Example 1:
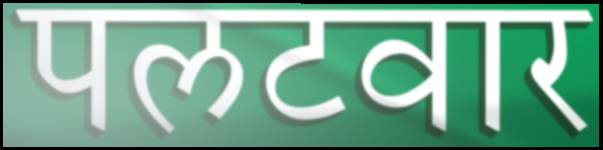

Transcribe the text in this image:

पलटवार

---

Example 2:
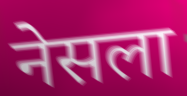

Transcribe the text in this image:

नेसला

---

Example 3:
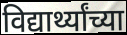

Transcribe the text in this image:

विद्यार्थ्यांच्या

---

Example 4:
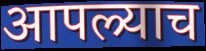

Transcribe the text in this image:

आपल्याच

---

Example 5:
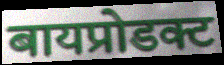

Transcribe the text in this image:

बायप्रोडक्ट